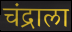
चंद्राला